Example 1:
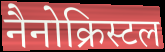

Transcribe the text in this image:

नैनोक्रिस्टल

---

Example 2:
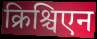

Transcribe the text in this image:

क्रिश्चिएन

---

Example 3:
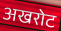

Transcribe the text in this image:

अखरोट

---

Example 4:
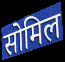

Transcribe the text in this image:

सोमिल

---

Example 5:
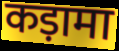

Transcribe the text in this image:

कड़ामा